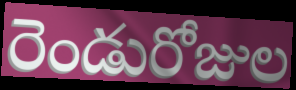
రెండురోజుల